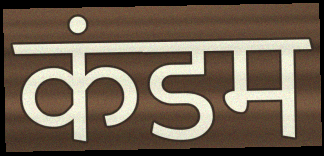
कंडम